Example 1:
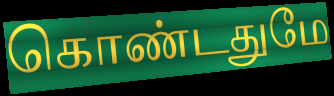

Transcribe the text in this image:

கொண்டதுமே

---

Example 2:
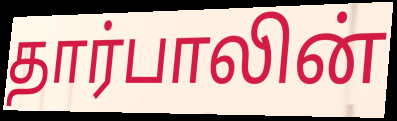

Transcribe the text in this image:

தார்பாலின்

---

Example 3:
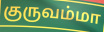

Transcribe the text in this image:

குருவம்மா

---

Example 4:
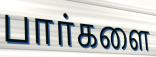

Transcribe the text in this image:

பார்களை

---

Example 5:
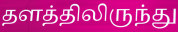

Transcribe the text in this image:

தளத்திலிருந்து